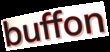
buffon